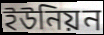
ইউনিয়ন